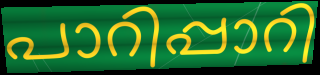
പാറിപ്പാറി